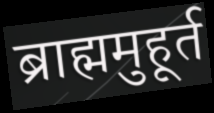
ब्राह्ममुहूर्त